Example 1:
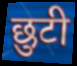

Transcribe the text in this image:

छुटी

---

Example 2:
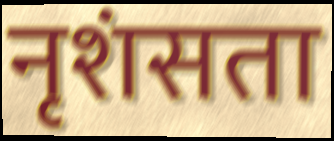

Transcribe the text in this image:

नृशंसता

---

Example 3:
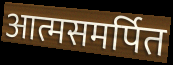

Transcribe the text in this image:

आत्मसमर्पित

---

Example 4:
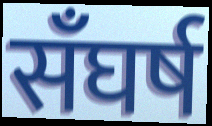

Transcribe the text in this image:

सँघर्ष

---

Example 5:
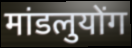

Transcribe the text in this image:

मांडलुयोंग